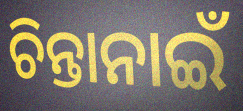
ଚିନ୍ତାନାଇଁ